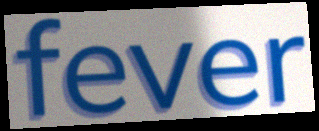
fever